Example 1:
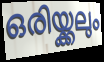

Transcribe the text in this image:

ഒരിയ്ക്കലും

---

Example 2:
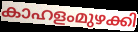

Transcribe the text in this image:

കാഹളംമുഴക്കി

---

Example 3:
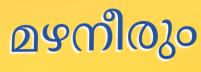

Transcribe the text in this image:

മഴനീരും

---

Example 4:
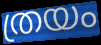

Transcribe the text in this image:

ത്രയം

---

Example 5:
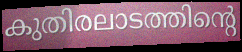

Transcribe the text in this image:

കുതിരലാടത്തിന്റെ